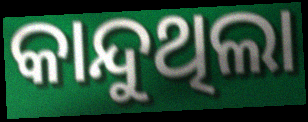
କାନ୍ଦୁଥିଲା